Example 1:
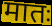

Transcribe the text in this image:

मातः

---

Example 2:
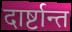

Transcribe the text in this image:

दार्ष्टान्त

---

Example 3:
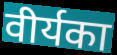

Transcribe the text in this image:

वीर्यका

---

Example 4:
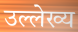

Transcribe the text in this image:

उल्लेख्य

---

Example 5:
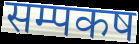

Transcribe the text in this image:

सम्पकष